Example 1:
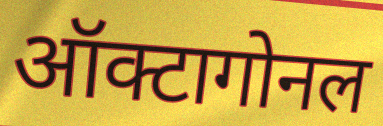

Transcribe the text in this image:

ऑक्टागोनल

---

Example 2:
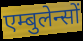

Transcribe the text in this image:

एम्बुलेन्सों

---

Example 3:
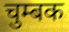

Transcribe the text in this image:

चुम्बक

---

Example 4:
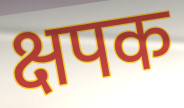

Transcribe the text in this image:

क्षपक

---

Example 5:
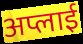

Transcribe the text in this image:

अप्‍लाई